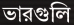
ভারগুলি